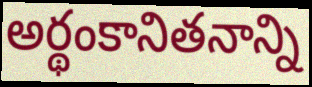
అర్థంకానితనాన్ని